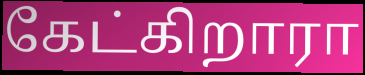
கேட்கிறாரா